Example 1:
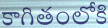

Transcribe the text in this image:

కాగితంలోకి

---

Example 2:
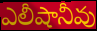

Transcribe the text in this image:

ఎలీషానీవు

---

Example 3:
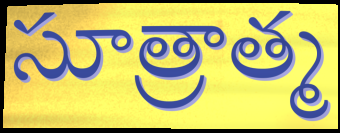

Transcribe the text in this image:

సూత్రాత్మ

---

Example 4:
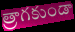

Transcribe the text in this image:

త్రాగకుండా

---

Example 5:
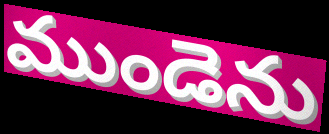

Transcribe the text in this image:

ముండెను